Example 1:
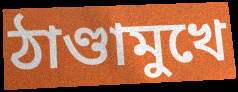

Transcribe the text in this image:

ঠাণ্ডামুখে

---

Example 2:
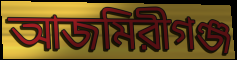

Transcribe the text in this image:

আজমিরীগঞ্জ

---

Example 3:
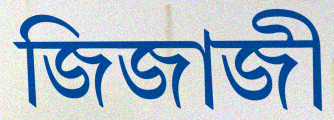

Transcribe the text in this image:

জিজাজী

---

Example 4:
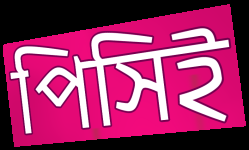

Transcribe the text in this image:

পিসিই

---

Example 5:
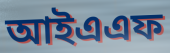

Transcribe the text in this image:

আইএএফ